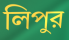
লিপুর